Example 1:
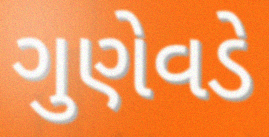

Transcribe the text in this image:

ગુણેવડે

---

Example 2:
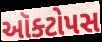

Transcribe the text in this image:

ઑક્ટોપસ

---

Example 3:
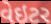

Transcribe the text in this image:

વેઇટર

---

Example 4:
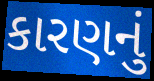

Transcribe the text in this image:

કારણનું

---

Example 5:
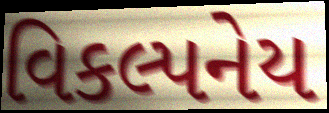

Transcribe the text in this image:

વિકલ્પનેય